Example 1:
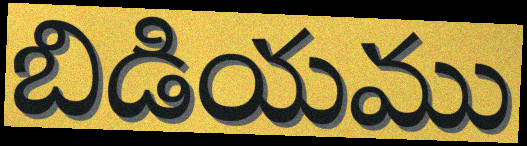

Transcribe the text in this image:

బిడియము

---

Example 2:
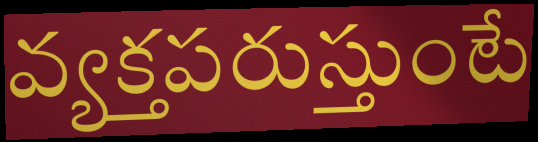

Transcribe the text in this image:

వ్యక్తపరుస్తుంటే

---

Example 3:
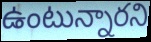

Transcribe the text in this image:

ఉంటున్నారని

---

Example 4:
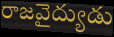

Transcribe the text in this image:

రాజవైద్యుడు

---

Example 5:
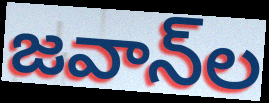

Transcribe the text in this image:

జవాన్‌ల